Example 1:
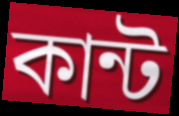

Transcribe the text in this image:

কান্ট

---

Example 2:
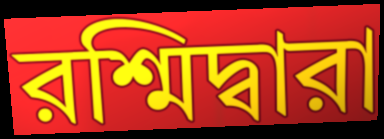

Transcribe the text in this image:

রশ্মিদ্বারা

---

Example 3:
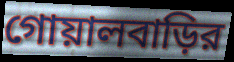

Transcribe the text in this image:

গোয়ালবাড়ির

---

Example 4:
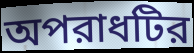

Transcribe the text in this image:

অপরাধটির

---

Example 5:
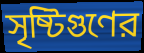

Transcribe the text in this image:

সৃষ্টিগুণের